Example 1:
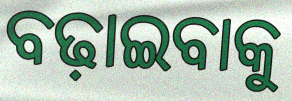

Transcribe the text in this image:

ବଢ଼ାଇବାକୁ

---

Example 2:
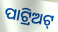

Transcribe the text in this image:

ପାଟ୍ରିଅଟ୍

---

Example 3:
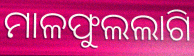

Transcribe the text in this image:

ମାଳଫୁଲଲାଗି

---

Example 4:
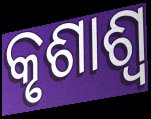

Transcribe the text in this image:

କୃଶାଶ୍ୱ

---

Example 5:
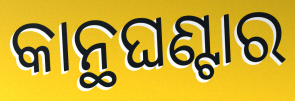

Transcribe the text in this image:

କାନ୍ଥଘଣ୍ଟାର